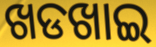
ଖଡଖାଇ